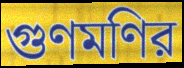
গুণমণির